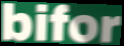
bifor